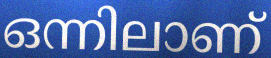
ഒന്നിലാണ്